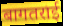
बागतराई